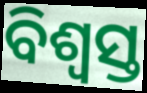
ବିଶ୍ବସ୍ତ